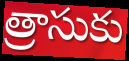
త్రాసుకు